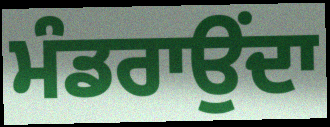
ਮੰਡਰਾਉਂਦਾ